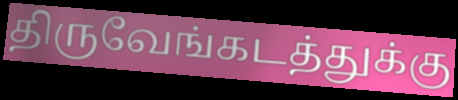
திருவேங்கடத்துக்கு